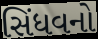
સિંધવનો